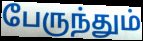
பேருந்தும்